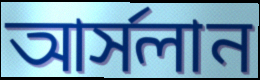
আর্সলান